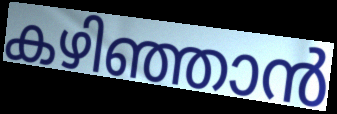
കഴിഞ്ഞാൻ